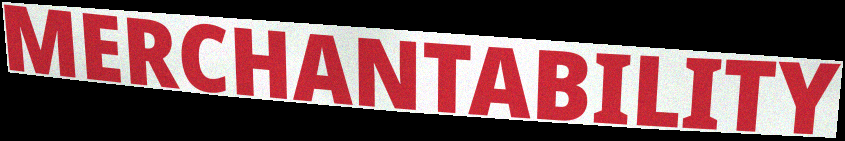
MERCHANTABILITY